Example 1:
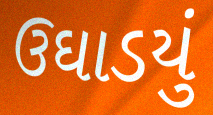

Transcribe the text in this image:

ઉઘાડયું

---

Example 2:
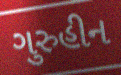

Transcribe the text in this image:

ગુરુહીન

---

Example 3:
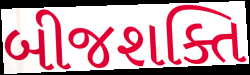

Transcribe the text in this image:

બીજશક્તિ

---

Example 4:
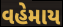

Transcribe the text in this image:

વહેમાય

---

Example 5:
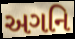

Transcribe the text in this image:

અગનિ